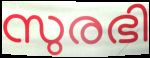
സുരഭി